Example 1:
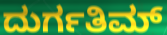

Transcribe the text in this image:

ದುರ್ಗತಿಮ್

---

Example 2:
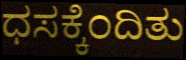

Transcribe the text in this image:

ಧಸಕ್ಕೆಂದಿತು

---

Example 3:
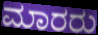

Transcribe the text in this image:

ಮಾರರು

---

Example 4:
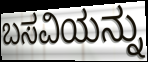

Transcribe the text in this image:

ಬಸವಿಯನ್ನು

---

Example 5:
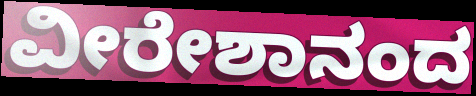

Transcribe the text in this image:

ವೀರೇಶಾನಂದ